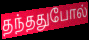
தந்ததுபோல்